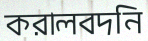
করালবদনি